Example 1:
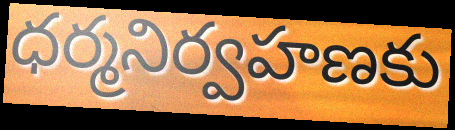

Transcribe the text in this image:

ధర్మనిర్వహణకు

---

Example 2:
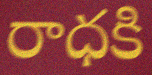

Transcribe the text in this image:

రాధకి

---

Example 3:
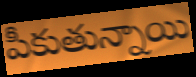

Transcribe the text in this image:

పీకుతున్నాయి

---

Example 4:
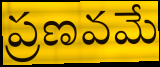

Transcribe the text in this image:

ప్రణవమే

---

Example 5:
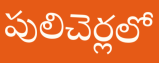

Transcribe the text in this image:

పులిచెర్లలో